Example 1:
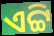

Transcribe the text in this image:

ଏଟ୍ଟି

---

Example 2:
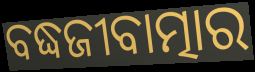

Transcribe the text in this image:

ବଦ୍ଧଜୀବାତ୍ମାର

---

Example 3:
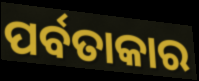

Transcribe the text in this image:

ପର୍ବତାକାର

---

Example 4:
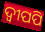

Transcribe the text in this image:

ଦ୍ବୀପପି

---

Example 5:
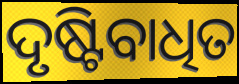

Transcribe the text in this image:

ଦୃଷ୍ଟିବାଧିତ